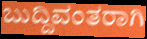
ಬುದ್ದಿವಂತರಾಗಿ